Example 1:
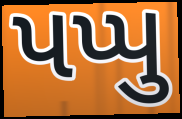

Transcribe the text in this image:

પપ્પુ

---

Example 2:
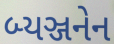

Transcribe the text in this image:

બ્યઞ્જનેન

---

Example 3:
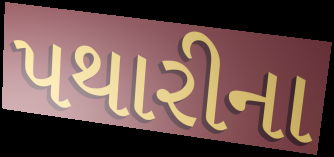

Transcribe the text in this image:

પથારીના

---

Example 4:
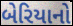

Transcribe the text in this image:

બેરિયાનો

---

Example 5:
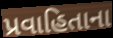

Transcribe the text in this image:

પ્રવાહિતાના